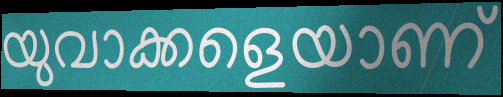
യുവാക്കളെയാണ്